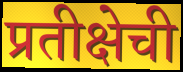
प्रतीक्षेची